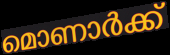
മൊണാർക്ക്